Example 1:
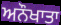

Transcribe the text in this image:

ਅਨੌਖਾਤਾ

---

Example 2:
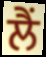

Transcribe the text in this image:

ਲੈਂ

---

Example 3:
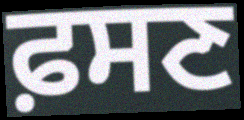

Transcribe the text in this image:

ਫ਼ਸਣ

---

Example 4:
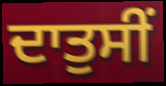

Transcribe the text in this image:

ਦਾਤੁਸੀਂ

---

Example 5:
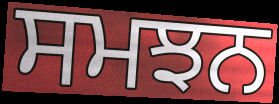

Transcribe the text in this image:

ਸਮਝਨ